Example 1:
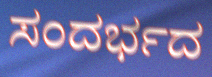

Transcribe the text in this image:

ಸಂದರ್ಭದ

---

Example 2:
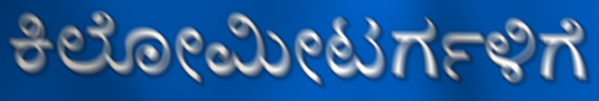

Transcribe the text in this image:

ಕಿಲೋಮೀಟರ್ಗಳಿಗೆ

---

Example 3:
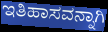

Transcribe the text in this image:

ಇತಿಹಾಸವನ್ನಾಗಿ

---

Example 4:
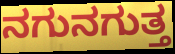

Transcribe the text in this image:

ನಗುನಗುತ್ತ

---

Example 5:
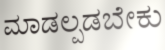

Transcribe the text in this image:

ಮಾಡಲ್ಪಡಬೇಕು